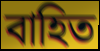
বাহিত